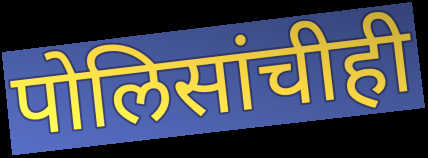
पोलिसांचीही